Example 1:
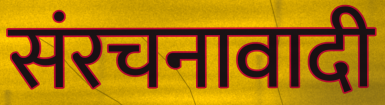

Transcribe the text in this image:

संरचनावादी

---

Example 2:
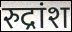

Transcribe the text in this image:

रुद्रांश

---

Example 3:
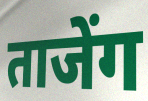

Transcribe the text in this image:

ताजेंग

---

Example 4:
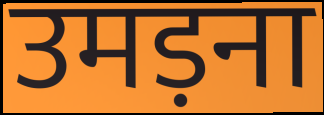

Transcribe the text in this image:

उमड़ना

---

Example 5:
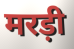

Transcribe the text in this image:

मरड़ी